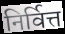
निर्वित्त